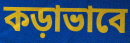
কড়াভাবে